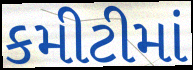
કમીટીમાં